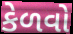
કેળવો